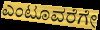
ಎಂಟೂವರೆಗೇ